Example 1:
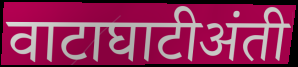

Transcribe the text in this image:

वाटाघाटीअंती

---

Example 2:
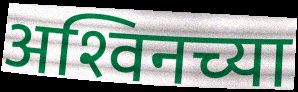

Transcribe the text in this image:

अश्विनच्या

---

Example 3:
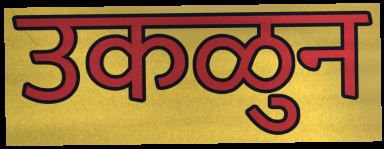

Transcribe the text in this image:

उकळुन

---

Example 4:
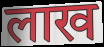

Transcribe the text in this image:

लाख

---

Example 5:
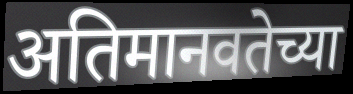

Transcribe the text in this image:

अतिमानवतेच्या